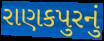
રાણકપુરનું